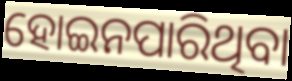
ହୋଇନପାରିଥିବା